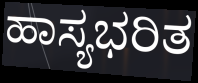
ಹಾಸ್ಯಭರಿತ